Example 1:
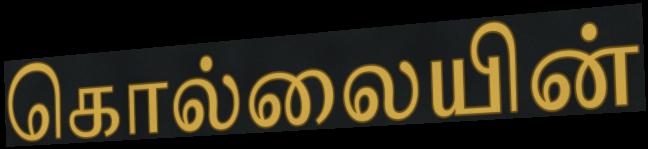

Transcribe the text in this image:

கொல்லையின்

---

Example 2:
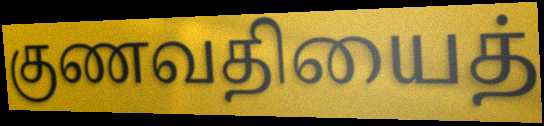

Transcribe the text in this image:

குணவதியைத்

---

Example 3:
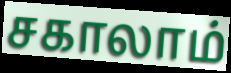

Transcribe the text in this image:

சகாலாம்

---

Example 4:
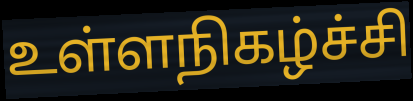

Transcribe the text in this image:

உள்ளநிகழ்ச்சி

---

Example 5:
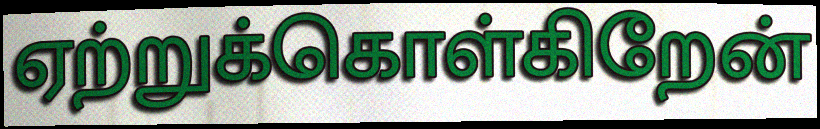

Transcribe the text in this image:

ஏற்றுக்கொள்கிறேன்